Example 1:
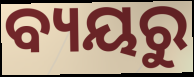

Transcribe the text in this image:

ବ୍ୟୟରୁ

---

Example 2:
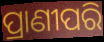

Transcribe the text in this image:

ପ୍ରାଣୀପରି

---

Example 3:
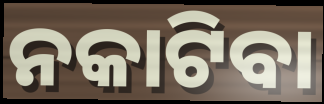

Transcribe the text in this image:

ନକାଟିବା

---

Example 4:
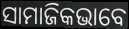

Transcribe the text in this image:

ସାମାଜିକଭାବେ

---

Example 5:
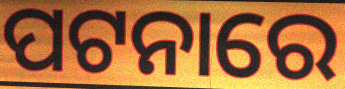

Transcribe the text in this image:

ପଟନାରେ